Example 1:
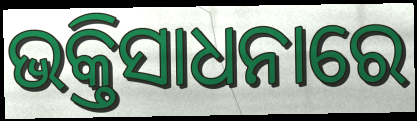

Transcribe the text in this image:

ଭକ୍ତିସାଧନାରେ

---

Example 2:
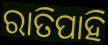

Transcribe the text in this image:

ରାତିପାହି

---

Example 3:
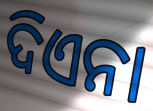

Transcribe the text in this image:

ଦିଏନା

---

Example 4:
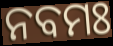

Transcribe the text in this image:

ନବମଃ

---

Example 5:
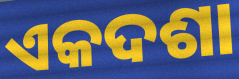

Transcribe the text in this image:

ଏକଦଶା